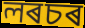
লৰচৰ